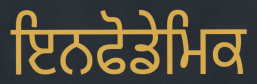
ਇਨਫੋਡੇਮਿਕ